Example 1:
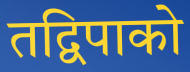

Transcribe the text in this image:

तद्विपाको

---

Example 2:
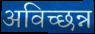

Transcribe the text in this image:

अविच्छन्न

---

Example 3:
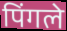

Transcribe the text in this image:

पिंगले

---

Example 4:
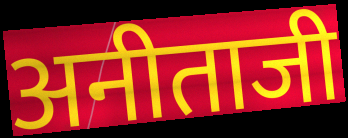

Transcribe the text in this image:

अनीताजी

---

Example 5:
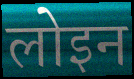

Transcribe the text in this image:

लोइन